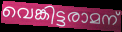
വെങ്കിട്ടരാമന്